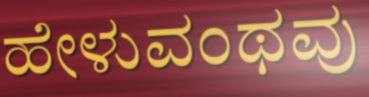
ಹೇಳುವಂಥವು